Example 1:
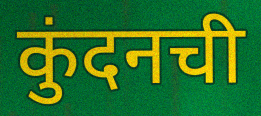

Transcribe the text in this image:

कुंदनची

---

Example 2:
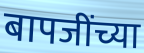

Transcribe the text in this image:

बापजींच्या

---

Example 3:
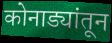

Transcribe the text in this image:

कोनाड्यांतून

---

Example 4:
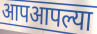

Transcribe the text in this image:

आपआपल्या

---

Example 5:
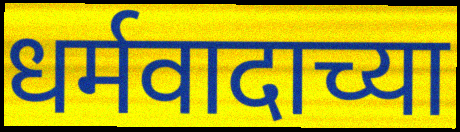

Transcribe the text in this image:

धर्मवादाच्या